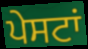
ਪੇਸਟਾਂ